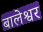
बालेश्वर